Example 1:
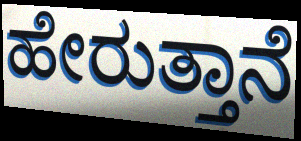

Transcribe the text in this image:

ಹೇರುತ್ತಾನೆ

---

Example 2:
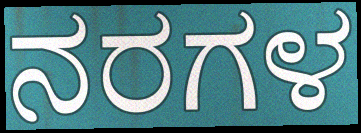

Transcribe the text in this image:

ನರಗಳ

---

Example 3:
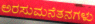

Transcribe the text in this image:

ಅರಸುಮನೆತನಗಳು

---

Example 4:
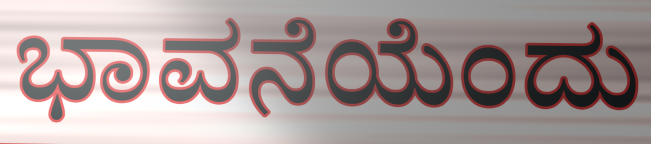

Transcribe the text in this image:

ಭಾವನೆಯೆಂದು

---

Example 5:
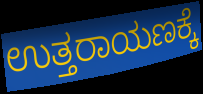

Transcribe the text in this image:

ಉತ್ತರಾಯಣಕ್ಕೆ